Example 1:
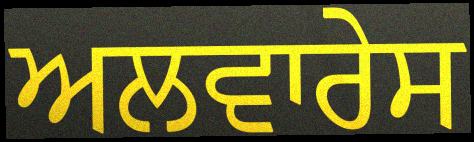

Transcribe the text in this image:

ਅਲਵਾਰੇਸ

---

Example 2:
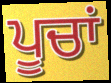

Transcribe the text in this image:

ਪੂਚਾਂ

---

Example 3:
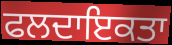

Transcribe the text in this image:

ਫਲਦਾਇਕਤਾ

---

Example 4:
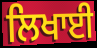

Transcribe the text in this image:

ਲਿਖਾਈ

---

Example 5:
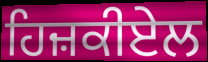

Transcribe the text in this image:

ਹਿਜ਼ਕੀਏਲ